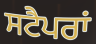
ਸਟੈਪਰਾਂ